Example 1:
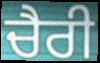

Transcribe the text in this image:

ਚੈਰੀ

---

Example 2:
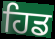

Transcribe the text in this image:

ਹਿਡ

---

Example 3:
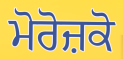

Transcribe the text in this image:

ਮੋਰੋਜ਼ਕੋ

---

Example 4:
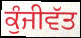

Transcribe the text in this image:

ਕੁੰਜੀਵੱਤ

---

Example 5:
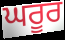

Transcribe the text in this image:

ਘਰੂਰ